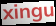
xingu